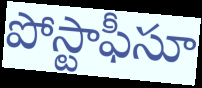
పోస్టాఫీసూ